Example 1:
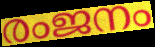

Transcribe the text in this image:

രംജനം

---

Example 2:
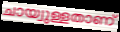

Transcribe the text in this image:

ചായ്വുള്ളതാണ്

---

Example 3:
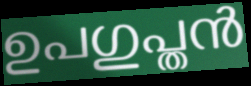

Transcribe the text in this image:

ഉപഗുപ്തൻ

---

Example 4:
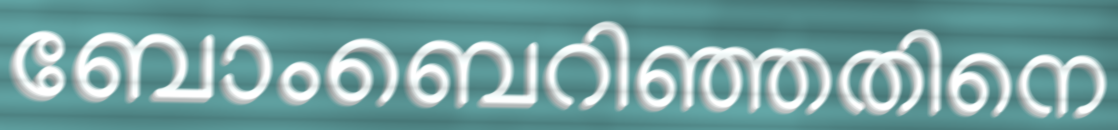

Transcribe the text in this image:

ബോംബെറിഞ്ഞതിനെ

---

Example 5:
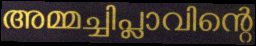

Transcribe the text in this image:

അമ്മച്ചിപ്ലാവിന്റെ